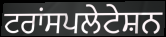
ਟਰਾਂਸਪਲੇਟੇਸ਼ਨ